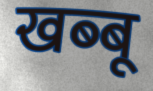
खब्‍बू